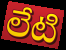
లేటి